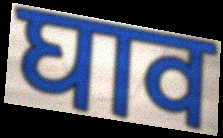
घाव